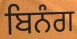
ਬਿਨੰਗ